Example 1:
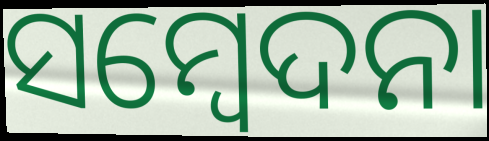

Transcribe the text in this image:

ସମ୍ବେଦନା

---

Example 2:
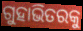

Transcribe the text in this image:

ଗୁହାଭିତରକୁ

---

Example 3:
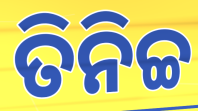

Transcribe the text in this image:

ତିନିଚ୍ଚ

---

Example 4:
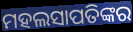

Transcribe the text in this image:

ମହଲସାପତିଙ୍କର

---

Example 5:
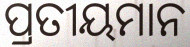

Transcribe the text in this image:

ପ୍ରତୀୟମାନ